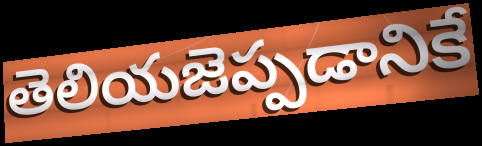
తెలియజెప్పడానికే